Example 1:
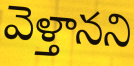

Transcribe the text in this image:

వెళ్తానని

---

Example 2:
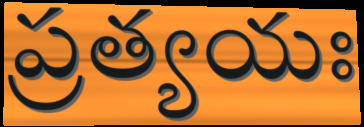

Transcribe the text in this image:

ప్రత్యయః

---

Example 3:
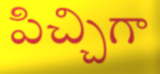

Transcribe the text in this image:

పిచ్చిగా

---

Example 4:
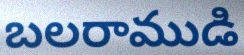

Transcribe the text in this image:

బలరాముడి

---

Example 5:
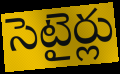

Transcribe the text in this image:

సెటైర్లు